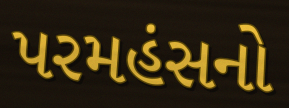
પરમહંસનો